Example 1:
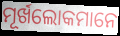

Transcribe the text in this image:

ମୂର୍ଖଲୋକମାନେ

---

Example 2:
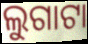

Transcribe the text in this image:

ଲୁଗାଟା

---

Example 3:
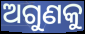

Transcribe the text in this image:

ଅଗୁଣକୁ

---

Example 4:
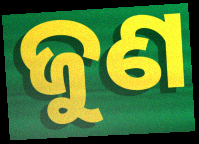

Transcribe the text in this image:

ଜୁଣ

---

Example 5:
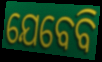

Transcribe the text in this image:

ଯେବେବି